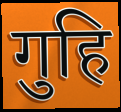
गुहि